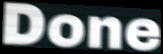
Done